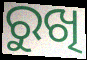
ରୁଖି